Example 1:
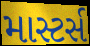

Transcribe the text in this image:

માસ્ટર્સ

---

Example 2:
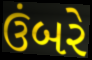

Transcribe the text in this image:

ઉંબરે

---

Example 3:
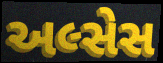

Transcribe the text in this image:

અલ્સેસ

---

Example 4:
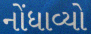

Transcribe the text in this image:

નોંધાવ્યો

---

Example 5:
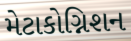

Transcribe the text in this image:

મેટાકોગ્નિશન